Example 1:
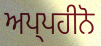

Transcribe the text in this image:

ਅਪ੍ਪਹੀਨੋ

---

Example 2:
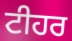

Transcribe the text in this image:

ਟੀਹਰ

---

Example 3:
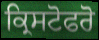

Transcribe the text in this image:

ਕ੍ਰਿਸਟੋਫਰੋ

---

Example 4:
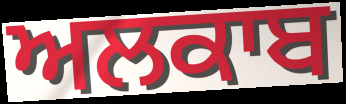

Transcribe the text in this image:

ਅਲਕਾਬ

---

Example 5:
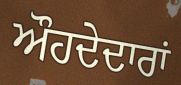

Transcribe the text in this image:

ਔਹਦੇਦਾਰਾਂ